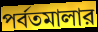
পর্বতমালার